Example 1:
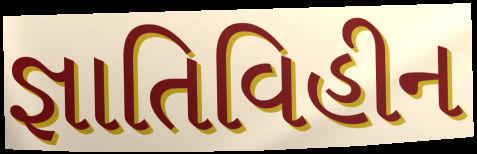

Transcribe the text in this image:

જ્ઞાતિવિહીન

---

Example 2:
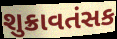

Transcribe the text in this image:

શુક્રાવતંસક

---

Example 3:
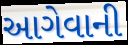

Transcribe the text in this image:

આગેવાની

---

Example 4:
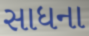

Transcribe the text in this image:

સાધના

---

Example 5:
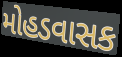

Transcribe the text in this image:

મોહડવાસક